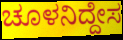
ಚೂಳನಿದ್ದೇಸ